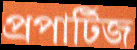
প্রপার্টিজ